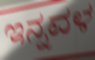
ಇನ್ನವಳ